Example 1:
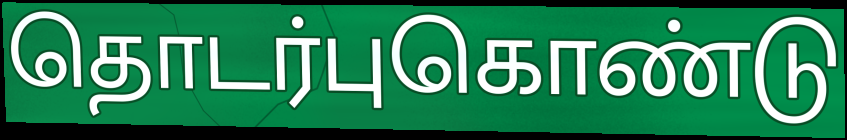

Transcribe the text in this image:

தொடர்புகொண்டு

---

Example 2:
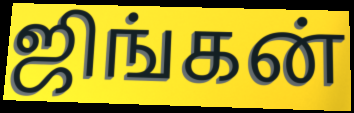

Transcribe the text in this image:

ஜிங்கன்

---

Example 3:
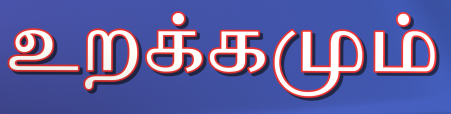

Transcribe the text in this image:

உறக்கமும்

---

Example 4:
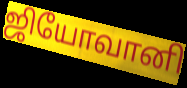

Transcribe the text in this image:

ஜியோவானி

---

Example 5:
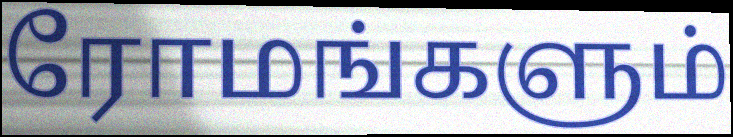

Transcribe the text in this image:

ரோமங்களும்